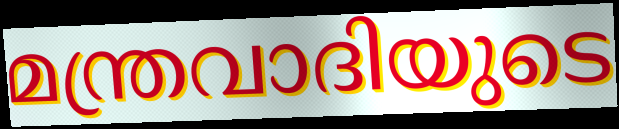
മന്ത്രവാദിയുടെ